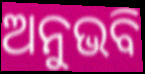
ଅନୁଭବି